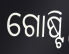
ଗୋଷ୍ଟି